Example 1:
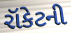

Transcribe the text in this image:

રૉકેટની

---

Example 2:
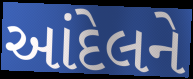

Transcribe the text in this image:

આંદેલને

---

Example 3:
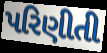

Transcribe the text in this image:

પરિણીતી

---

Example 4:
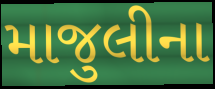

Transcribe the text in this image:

માજુલીના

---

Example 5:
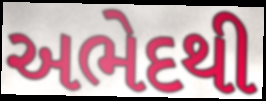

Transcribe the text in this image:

અભેદથી